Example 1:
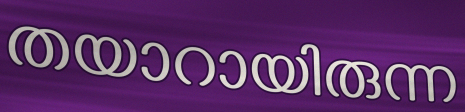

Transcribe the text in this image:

തയാറായിരുന്ന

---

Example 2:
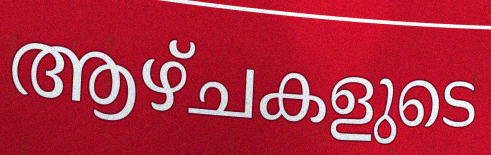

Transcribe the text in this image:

ആഴ്ചകളുടെ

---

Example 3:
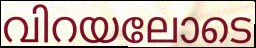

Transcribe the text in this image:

വിറയലോടെ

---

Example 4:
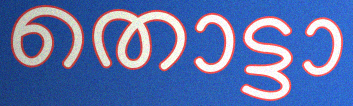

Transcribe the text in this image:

തൊട്ടാ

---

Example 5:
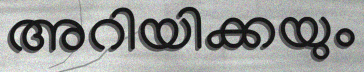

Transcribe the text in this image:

അറിയിക്കയും